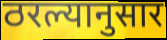
ठरल्यानुसार